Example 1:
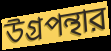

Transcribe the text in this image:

উগ্রপন্থার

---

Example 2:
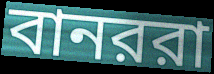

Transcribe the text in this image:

বানররা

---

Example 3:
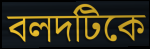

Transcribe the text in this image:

বলদটিকে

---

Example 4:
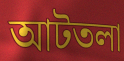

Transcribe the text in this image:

আটতলা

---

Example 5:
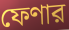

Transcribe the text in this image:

ফেণার